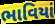
ભાવિયાં